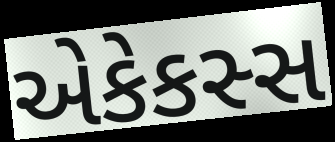
એકેકસ્સ